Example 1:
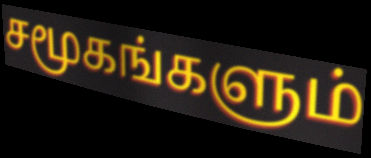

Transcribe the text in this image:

சமூகங்களும்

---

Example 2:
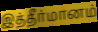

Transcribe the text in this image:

இத்தீர்மானம்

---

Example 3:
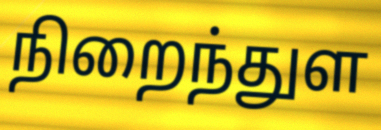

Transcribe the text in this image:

நிறைந்துள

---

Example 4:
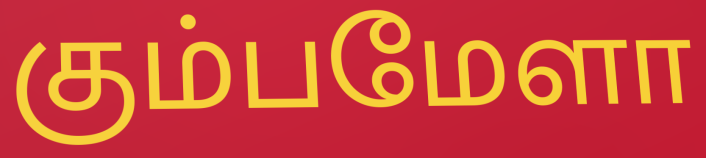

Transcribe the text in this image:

கும்பமேளா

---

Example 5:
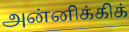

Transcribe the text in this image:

அன்னிக்கிக்